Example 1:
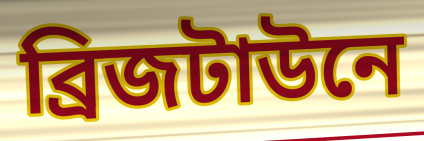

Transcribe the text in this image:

ব্রিজটাউনে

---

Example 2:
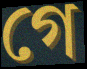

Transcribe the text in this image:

গে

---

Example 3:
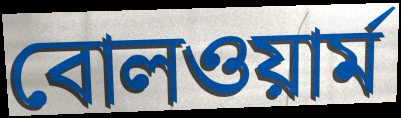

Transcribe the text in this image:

বোলওয়ার্ম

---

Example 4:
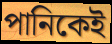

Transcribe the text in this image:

পানিকেই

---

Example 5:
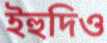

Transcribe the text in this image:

ইহুদিও